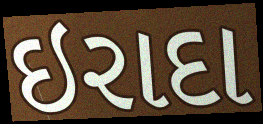
ઇરાદા